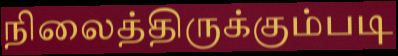
நிலைத்திருக்கும்படி